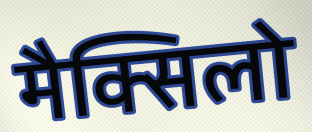
मैक्सिलो